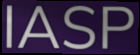
IASP